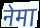
नेमा